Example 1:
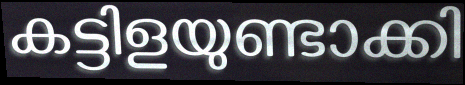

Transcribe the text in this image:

കട്ടിളയുണ്ടാക്കി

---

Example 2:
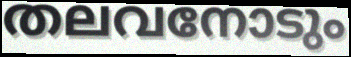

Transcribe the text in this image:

തലവനോടും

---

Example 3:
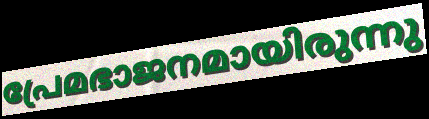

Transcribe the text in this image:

പ്രേമഭാജനമായിരുന്നു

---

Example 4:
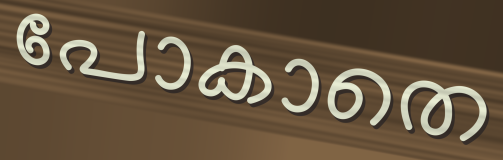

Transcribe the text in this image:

പോകാതെ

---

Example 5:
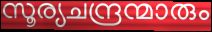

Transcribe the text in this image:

സൂര്യചന്ദ്രന്മാരും